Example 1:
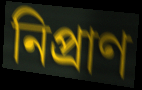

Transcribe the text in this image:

নিপ্রাণ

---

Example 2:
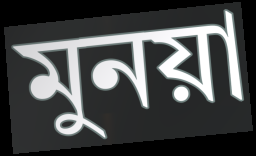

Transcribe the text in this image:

মুনয়া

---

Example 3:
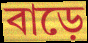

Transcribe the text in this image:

বাড়ে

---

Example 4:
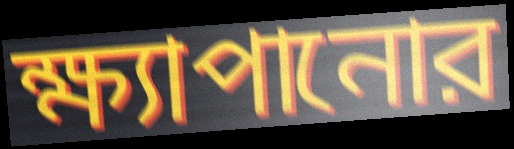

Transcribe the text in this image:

ক্ষ্যাপানোর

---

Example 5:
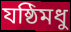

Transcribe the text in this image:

যষ্ঠিমধু